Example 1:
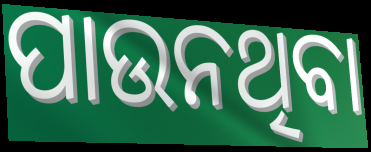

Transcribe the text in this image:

ପାଉନଥିବା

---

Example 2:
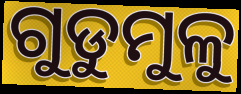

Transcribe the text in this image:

ଗୁଡୁମୁଳୁ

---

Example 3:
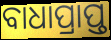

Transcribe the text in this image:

ବାଧାପ୍ରାପ୍ତ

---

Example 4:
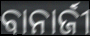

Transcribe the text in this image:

ବାନାର୍ଜୀ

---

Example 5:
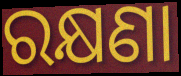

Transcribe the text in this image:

ରକ୍ଷଣା